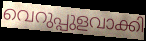
വെറുപ്പുളവാക്കി